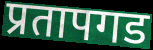
प्रतापगड